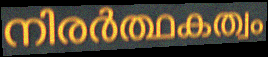
നിരർത്ഥകത്വം